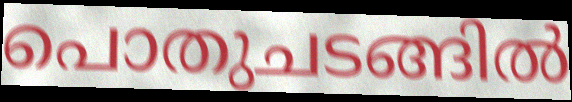
പൊതുചടങ്ങിൽ